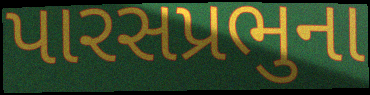
પારસપ્રભુના